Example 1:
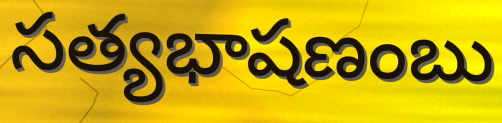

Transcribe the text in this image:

సత్యభాషణంబు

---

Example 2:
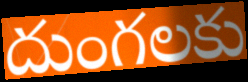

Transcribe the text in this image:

దుంగలకు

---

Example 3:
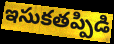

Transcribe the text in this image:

ఇసుకతప్పిడి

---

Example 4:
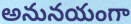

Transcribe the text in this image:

అనునయంగా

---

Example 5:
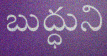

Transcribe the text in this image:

బుద్ధుని